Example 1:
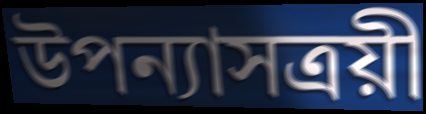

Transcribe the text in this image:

উপন্যাসত্রয়ী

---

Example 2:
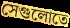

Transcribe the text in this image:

সেগুলোতে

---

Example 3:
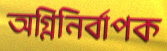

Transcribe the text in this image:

অগ্নিনির্বাপক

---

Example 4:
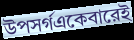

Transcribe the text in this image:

উপসর্গএকেবারেই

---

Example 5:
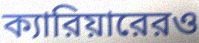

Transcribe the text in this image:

ক্যারিয়ারেরও